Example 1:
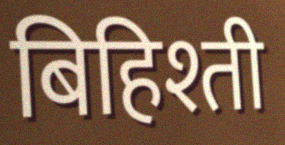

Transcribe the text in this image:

बिहिश्ती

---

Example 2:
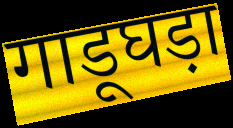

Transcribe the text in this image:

गाडूघड़ा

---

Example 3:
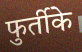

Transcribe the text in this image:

फुर्तीके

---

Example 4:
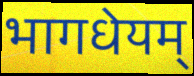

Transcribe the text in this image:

भागधेयम्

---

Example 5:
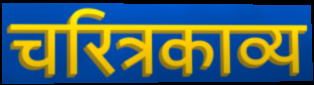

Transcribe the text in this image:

चरित्रकाव्य